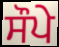
ਸੌਪੇ